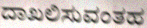
ದಾಖಲಿಸುವಂತಹ